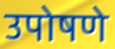
उपोषणे